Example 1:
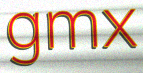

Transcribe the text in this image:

gmx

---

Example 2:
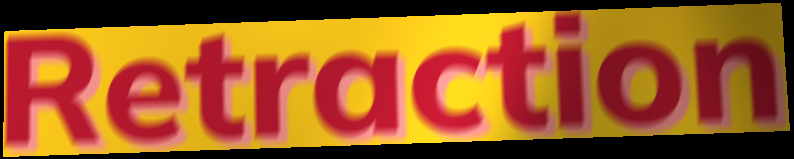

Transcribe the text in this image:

Retraction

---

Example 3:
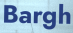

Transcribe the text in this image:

Bargh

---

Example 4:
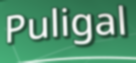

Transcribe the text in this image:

Puligal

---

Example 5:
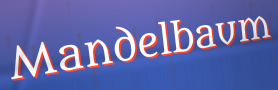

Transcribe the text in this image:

Mandelbaum